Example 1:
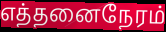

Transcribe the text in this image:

எத்தனைநேரம்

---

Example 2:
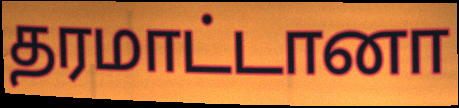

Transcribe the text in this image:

தரமாட்டானா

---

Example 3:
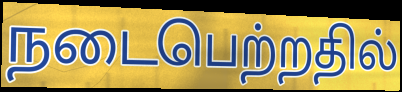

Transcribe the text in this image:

நடைபெற்றதில்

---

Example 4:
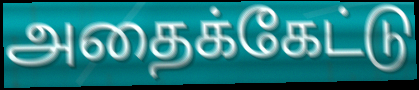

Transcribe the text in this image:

அதைக்கேட்டு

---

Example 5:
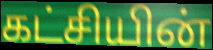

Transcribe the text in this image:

கட்சியின்